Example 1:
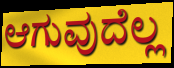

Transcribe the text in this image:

ಆಗುವುದೆಲ್ಲ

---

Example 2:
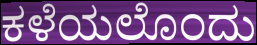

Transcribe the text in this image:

ಕಳೆಯಲೊಂದು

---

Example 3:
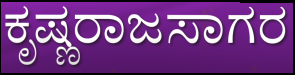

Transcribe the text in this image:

ಕೃಷ್ಣರಾಜಸಾಗರ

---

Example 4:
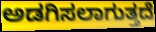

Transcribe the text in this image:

ಅಡಗಿಸಲಾಗುತ್ತದೆ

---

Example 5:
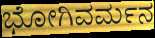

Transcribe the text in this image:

ಭೋಗಿವರ್ಮನ